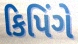
કિપિંગે